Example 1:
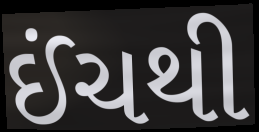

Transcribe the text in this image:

ઈંચથી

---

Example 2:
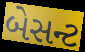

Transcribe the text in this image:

બેસન્ટ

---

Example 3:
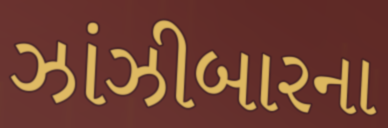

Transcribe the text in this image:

ઝાંઝીબારના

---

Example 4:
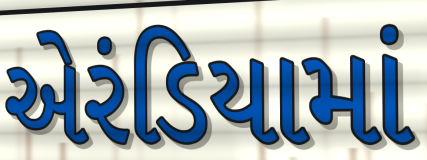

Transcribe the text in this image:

એરંડિયામાં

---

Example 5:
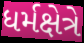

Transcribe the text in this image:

ધર્મક્ષેત્રે